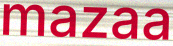
mazaa